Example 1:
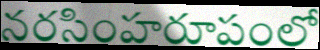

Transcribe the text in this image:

నరసింహరూపంలో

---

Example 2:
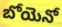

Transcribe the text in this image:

బోయెనో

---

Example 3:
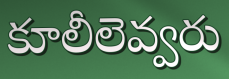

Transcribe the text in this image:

కూలీలెవ్వరు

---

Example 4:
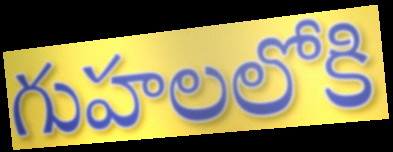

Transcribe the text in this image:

గుహలలోకి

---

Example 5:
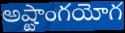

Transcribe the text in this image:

అష్టాంగయోగ